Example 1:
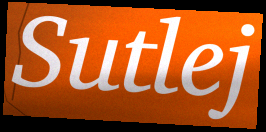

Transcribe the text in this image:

Sutlej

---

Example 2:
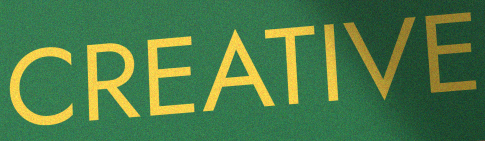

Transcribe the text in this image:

CREATIVE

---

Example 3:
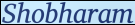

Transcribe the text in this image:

Shobharam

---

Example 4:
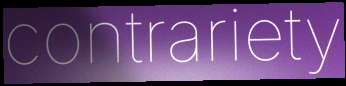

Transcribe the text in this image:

contrariety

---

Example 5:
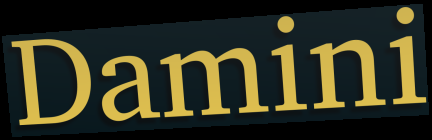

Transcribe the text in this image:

Damini